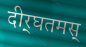
दीर्घतमस्